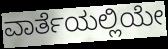
ವಾರ್ತೆಯಲ್ಲಿಯೇ